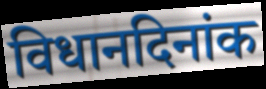
विधानदिनांक